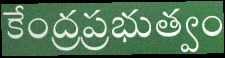
కేంద్రప్రభుత్వం